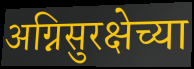
अग्निसुरक्षेच्या